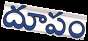
దూపం